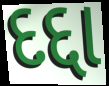
દદ્દા